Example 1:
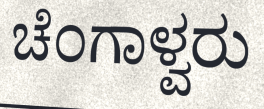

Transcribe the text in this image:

ಚೆಂಗಾಳ್ವರು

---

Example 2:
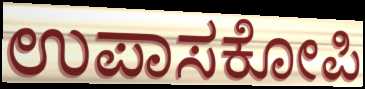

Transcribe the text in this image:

ಉಪಾಸಕೋಪಿ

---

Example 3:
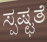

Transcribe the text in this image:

ಸ್ಪಷ್ಟತೆ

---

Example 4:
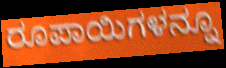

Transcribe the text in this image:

ರೂಪಾಯಿಗಳನ್ನೂ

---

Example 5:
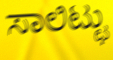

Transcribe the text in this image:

ಸಾಲಿಟ್ಟು